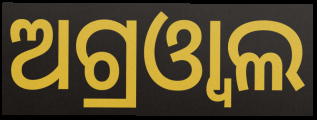
ଅଗ୍ରଓ୍ୱାଲ